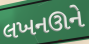
લખનઊને